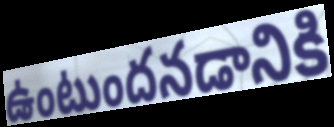
ఉంటుందనడానికి